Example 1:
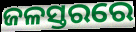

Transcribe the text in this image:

ଜଳସ୍ତରରେ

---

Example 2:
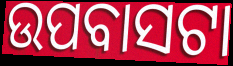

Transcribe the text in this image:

ଉପବାସଟା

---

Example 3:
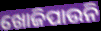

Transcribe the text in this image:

ଖୋଜିପାଉନି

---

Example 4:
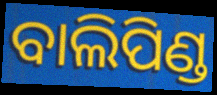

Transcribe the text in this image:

ବାଲିପିଣ୍ଡ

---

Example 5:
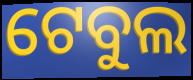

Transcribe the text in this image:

ଟେବୁଲ